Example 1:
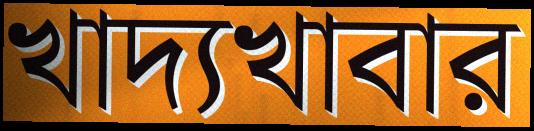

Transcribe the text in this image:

খাদ্যখাবার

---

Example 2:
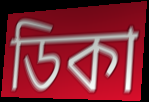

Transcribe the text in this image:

ডিকা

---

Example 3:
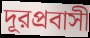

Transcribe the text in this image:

দূরপ্রবাসী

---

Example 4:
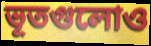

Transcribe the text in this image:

ভূতগুলোও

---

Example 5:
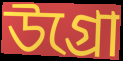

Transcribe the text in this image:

উগ্রো